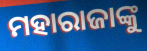
ମହାରାଜାଙ୍କୁ